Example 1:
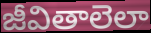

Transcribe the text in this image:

జీవితాలెలా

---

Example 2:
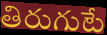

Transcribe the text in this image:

తిరుగుటే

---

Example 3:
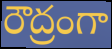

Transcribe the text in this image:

రౌద్రంగా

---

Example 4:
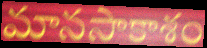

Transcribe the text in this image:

మానసాకాశం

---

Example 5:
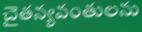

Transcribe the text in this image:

చైతన్యవంతులను